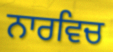
ਨਾਰਵਿਚ